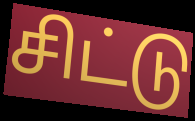
சிட்டு